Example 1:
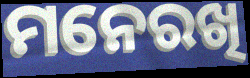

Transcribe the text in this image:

ମନେରଖି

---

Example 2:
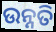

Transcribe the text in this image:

ଉନ୍ନତି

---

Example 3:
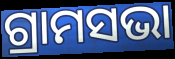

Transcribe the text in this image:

ଗ୍ରାମସଭା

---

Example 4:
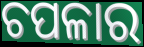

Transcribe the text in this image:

ଚପଳାର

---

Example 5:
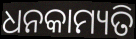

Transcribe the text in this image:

ଧନକାମ୍ୟତି